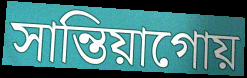
সান্তিয়াগোয়